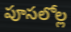
పూసలోల్ల